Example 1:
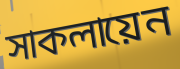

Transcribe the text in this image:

সাকলায়েন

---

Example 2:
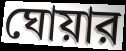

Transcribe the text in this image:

ঘোয়ার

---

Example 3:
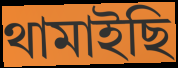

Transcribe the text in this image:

থামাইছি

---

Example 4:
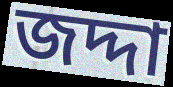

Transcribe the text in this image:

জদ্দা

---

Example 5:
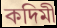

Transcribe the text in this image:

কদিমী